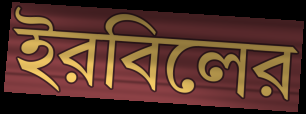
ইরবিলের